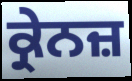
ਕ੍ਰੇਨਜ਼